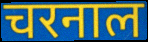
चरनाल